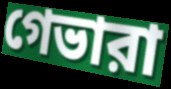
গেভারা